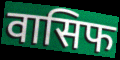
वासिफ